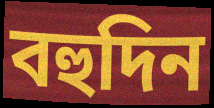
বহুদিন